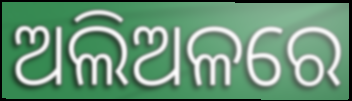
ଅଲିଅଳରେ